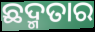
ଛଦ୍ମତାର